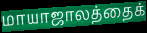
மாயாஜாலத்தைக்